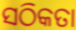
ସଠିକତା